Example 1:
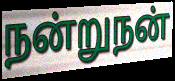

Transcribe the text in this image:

நன்றுநன்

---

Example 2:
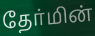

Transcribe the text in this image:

தேர்மின்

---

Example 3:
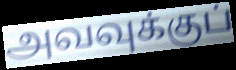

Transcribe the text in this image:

அவவுக்குப்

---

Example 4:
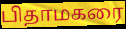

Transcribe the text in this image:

பிதாமகரை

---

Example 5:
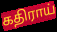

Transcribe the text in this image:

கதிராய்